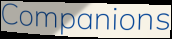
Companions